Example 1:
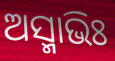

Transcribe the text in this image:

ଅସ୍ମାଭିଃ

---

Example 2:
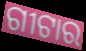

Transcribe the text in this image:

ଗୀଟାର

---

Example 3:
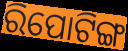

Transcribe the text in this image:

ରିପୋଟିଙ୍ଗ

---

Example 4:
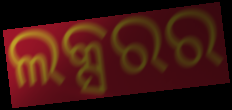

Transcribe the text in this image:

ଲକ୍ସରର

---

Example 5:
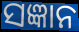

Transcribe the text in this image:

ସଜ୍ଞାନ